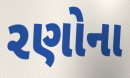
રણોના